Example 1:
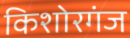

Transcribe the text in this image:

किशोरगंज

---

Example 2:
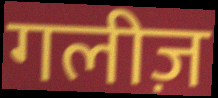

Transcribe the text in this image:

गलीज़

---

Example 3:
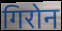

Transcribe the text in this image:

गिरोन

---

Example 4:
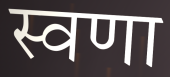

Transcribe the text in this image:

स्वणा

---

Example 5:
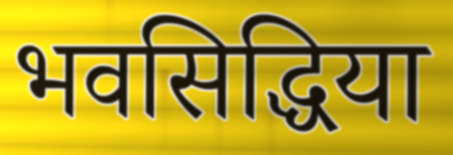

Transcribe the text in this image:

भवसिद्धिया